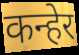
कन्हेर